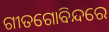
ଗୀତଗୋବିନ୍ଦରେ